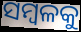
ସମ୍ବଳକୁ